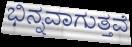
ಭಿನ್ನವಾಗುತ್ತವೆ